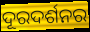
ଦୂରଦର୍ଶନର